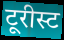
टूरीस्ट